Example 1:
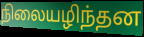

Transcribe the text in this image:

நிலையழிந்தன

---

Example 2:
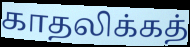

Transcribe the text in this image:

காதலிக்கத்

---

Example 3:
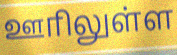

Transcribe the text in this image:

ஊரிலுள்ள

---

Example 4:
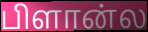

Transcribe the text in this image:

பிளான்ல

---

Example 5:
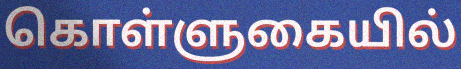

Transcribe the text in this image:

கொள்ளுகையில்